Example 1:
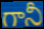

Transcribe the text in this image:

గానీ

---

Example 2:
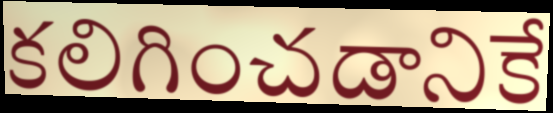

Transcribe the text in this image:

కలిగించడానికే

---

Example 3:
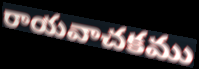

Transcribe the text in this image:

రాయవాచకము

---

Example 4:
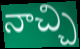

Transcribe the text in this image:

నాచ్చి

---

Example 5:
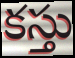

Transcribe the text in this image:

కస్తు